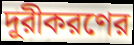
দূরীকরণের